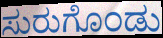
ಸುರುಗೊಂಡು